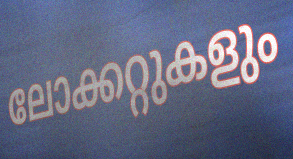
ലോക്കറ്റുകളും